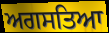
ਅਗਸਤਿਆ